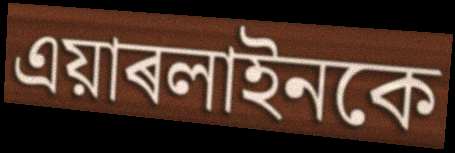
এয়াৰলাইনকে